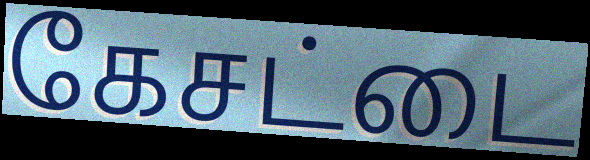
கேசட்டை